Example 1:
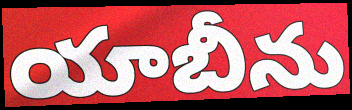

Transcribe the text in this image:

యాబీను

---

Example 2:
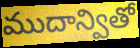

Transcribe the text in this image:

ముదాన్వితో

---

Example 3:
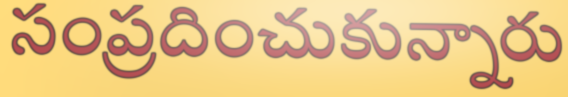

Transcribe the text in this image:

సంప్రదించుకున్నారు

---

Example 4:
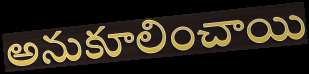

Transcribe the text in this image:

అనుకూలించాయి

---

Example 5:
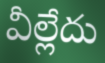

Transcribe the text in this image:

వీల్లేదు